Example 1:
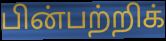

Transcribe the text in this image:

பின்பற்றிக்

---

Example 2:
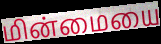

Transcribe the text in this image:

மின்மையை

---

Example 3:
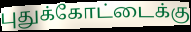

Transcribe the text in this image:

புதுக்கோட்டைக்கு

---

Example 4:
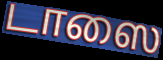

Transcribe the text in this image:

டாஸை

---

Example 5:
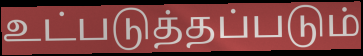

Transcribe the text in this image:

உட்படுத்தப்படும்